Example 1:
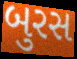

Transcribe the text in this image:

બુરસ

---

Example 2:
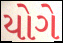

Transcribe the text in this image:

યોગે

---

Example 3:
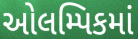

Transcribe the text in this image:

ઓલમ્પિકમાં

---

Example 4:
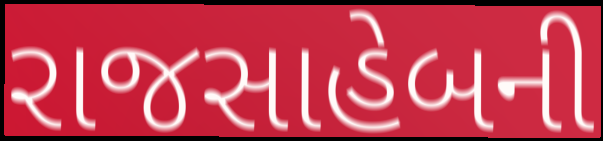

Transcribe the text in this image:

રાજસાહેબની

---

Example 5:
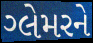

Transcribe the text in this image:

ગ્લેમરને